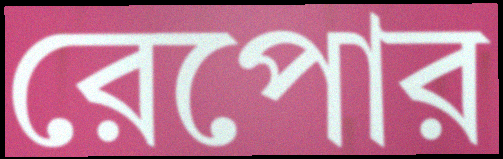
রেপোর